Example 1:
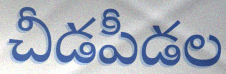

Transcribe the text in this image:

చీడపీడల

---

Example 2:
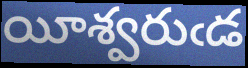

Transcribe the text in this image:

యీశ్వరుఁడ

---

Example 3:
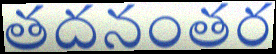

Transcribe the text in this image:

తదనంతర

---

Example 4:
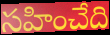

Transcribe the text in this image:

సహించేది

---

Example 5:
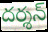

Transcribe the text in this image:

దర్శన్